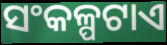
ସଂକଳ୍ପଟାଏ